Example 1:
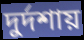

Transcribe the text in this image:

দুর্দশায়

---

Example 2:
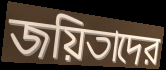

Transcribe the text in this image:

জয়িতাদের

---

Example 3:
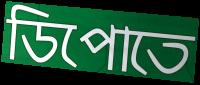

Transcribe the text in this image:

ডিপোতে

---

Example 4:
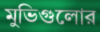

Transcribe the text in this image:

মুভিগুলোর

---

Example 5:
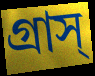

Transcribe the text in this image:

গ্রাস্